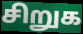
சிறுக